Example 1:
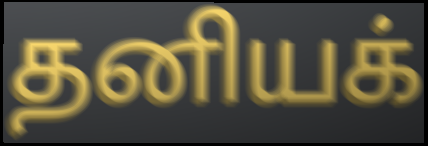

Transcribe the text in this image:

தனியக்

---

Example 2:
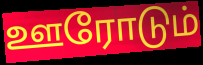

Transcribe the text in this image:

ஊரோடும்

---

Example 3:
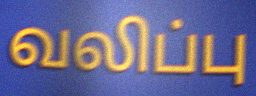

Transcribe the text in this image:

வலிப்பு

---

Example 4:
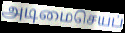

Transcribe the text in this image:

அடிமைசெயப்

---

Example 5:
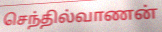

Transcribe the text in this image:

செந்தில்வாணன்